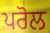
ਪਰੋਲ